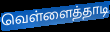
வெள்ளைத்தாடி